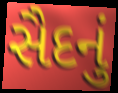
સૈદનું